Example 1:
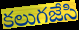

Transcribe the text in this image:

కలుగజేసి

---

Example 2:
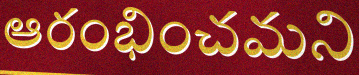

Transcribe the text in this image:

ఆరంభించమని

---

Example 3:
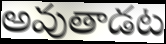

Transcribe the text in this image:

అవుతాడట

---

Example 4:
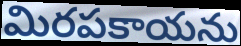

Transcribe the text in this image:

మిరపకాయను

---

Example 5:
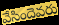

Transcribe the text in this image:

వేసిందెవరు